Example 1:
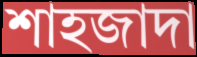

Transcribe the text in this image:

শাহজাদা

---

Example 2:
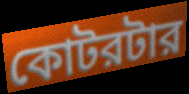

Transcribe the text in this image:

কোটরটার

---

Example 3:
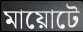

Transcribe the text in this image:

মায়োটে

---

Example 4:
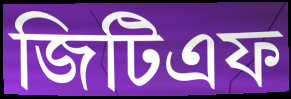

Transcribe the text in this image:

জিটিএফ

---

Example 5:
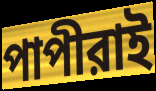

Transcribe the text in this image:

পাপীরাই